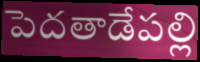
పెదతాడేపల్లి